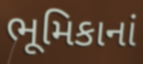
ભૂમિકાનાં